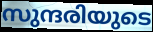
സുന്ദരിയുടെ